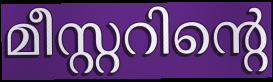
മീസ്റ്ററിന്റെ